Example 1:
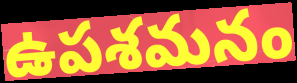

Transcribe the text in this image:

ఉపశమనం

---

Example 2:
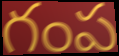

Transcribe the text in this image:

గంప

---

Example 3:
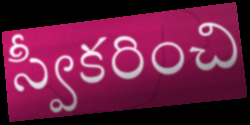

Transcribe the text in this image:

స్వీకరించి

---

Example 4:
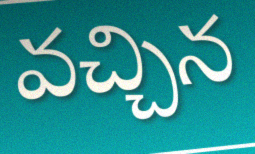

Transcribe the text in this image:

వచ్చిన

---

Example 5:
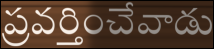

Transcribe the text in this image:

ప్రవర్తించేవాడు